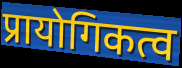
प्रायोगिकत्व